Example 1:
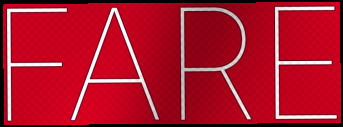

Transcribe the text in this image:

FARE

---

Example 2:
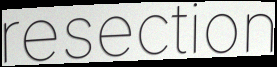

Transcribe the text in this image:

resection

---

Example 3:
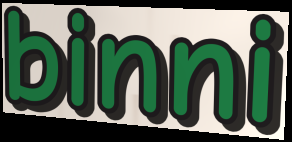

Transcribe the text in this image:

binni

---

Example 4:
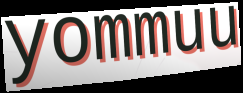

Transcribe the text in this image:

yommuu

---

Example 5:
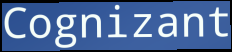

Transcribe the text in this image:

Cognizant